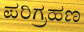
ಪರಿಗ್ರಹಣ